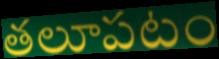
తలూపటం